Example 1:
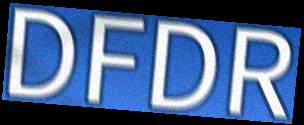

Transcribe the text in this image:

DFDR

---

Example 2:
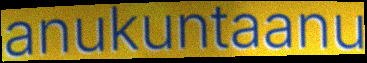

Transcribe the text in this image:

anukuntaanu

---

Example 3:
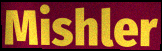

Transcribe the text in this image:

Mishler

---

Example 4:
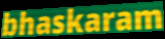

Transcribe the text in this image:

bhaskaram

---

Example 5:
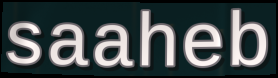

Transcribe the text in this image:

saaheb